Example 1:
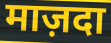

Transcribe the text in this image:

माज़दा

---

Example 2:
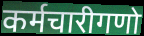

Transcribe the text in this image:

कर्मचारीगणो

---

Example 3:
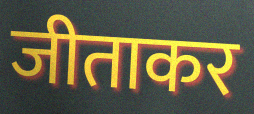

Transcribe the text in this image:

जीताकर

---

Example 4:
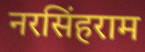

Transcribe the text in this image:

नरसिंहराम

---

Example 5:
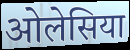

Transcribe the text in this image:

ओलेसिया